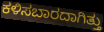
ಕಳಿಸಬಾರದಾಗಿತ್ತು